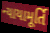
ન્યાયામૂર્તિ